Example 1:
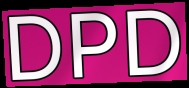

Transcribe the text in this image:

DPD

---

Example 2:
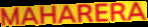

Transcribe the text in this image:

MAHARERA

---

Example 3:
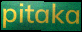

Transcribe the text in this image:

pitaka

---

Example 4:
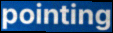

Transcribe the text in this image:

pointing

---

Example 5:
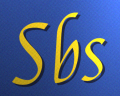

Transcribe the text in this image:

Sbs